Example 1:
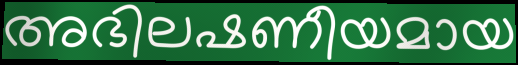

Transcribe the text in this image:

അഭിലഷണീയമായ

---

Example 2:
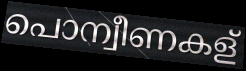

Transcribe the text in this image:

പൊന്വീണകള്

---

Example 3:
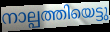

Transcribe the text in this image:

നാല്പത്തിയെട്ടു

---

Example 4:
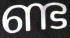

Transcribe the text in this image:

ണ്ട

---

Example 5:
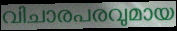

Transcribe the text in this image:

വിചാരപരവുമായ